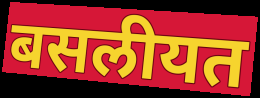
बसलीयत